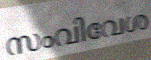
സംവിവേശ